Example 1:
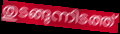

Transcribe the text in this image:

തുടങ്ങുന്നിടത്ത്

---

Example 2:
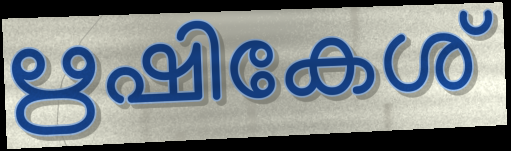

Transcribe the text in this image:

ഋഷികേശ്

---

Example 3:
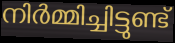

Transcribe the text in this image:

നിർമ്മിച്ചിട്ടുണ്ട്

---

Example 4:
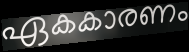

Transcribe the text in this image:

ഏകകാരണം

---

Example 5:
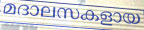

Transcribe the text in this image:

മദാലസകളായ